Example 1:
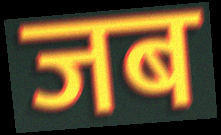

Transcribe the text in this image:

जब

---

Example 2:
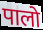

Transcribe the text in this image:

पालो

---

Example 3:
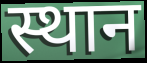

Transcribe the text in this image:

स्थान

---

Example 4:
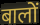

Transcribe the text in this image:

बालों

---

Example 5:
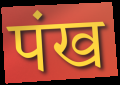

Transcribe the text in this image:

पंख